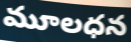
మూలధన